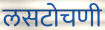
लसटोचणी